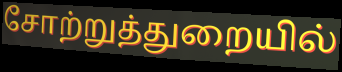
சோற்றுத்துறையில்